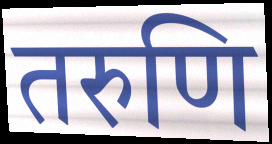
तरुणि